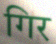
गिर